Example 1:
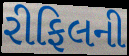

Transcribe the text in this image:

રીફિલની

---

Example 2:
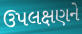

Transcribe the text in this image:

ઉપલક્ષણને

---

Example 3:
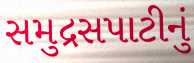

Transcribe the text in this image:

સમુદ્રસપાટીનું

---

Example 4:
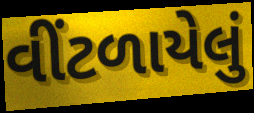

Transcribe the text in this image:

વીંટળાયેલું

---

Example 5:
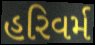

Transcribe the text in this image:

હરિવર્મ